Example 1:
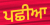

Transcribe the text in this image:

ਪਛੀਆ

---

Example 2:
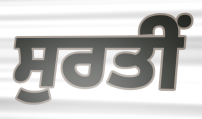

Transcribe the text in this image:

ਸੁਰਤੀਂ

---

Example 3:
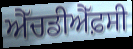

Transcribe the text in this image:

ਐੱਚਡੀਐੱਫ਼ਸੀ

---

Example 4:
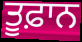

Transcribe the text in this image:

ਤੂਫ਼ਾਨ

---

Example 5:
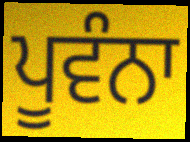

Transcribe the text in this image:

ਪੂਵੰਨਾ